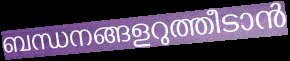
ബന്ധനങ്ങളറുത്തീടാൻ